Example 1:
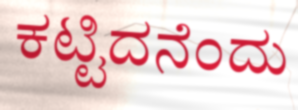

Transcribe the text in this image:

ಕಟ್ಟಿದನೆಂದು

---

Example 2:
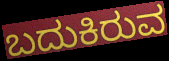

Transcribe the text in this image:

ಬದುಕಿರುವ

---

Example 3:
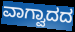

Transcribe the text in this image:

ವಾಗ್ವಾದದ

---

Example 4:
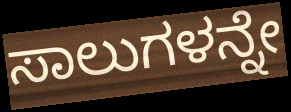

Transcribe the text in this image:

ಸಾಲುಗಳನ್ನೇ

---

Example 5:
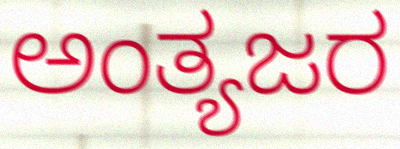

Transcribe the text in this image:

ಅಂತ್ಯಜರ